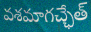
వశమాగచ్ఛేత్